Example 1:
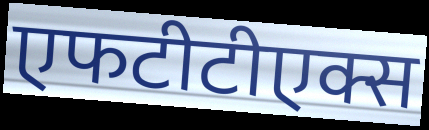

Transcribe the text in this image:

एफटीटीएक्स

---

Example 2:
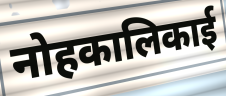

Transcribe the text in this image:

नोहकालिकाई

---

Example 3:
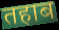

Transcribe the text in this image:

तहाब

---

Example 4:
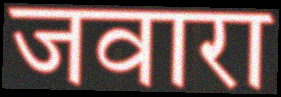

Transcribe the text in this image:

जवारा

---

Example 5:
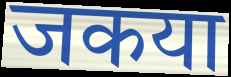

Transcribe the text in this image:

जकया